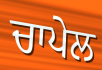
ਚਾਪੇਲ